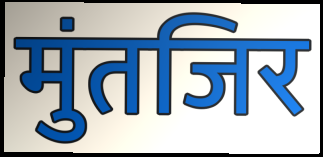
मुंतजिर